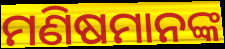
ମଣିଷମାନଙ୍କ